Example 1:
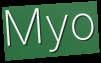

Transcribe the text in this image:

Myo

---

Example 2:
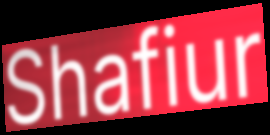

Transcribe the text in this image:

Shafiur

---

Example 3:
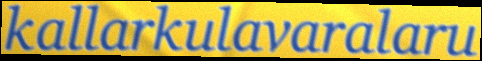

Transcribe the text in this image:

kallarkulavaralaru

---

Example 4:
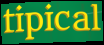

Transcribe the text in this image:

tipical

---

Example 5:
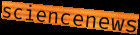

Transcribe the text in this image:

sciencenews